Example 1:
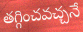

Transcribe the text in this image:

తగ్గించవచ్చనే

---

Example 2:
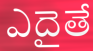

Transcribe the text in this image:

ఎదైతే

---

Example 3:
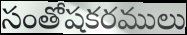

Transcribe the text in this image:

సంతోషకరములు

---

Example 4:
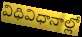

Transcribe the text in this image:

విధివిధానాల్లో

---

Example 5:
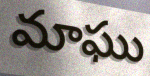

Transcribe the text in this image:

మాఘు